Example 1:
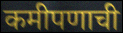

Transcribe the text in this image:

कमीपणाची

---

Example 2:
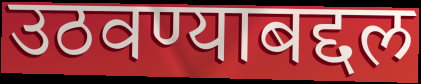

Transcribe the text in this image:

उठवण्याबद्दल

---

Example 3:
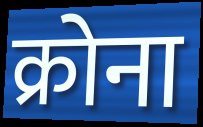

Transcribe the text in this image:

क्रोना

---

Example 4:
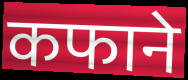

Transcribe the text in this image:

कफाने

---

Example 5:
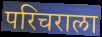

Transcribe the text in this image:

परिचराला